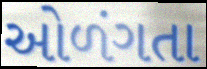
ઓળંગતા